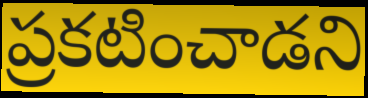
ప్రకటించాడని